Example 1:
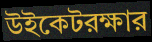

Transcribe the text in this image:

উইকেটরক্ষার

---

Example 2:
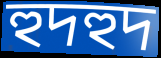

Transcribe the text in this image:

হুদহুদ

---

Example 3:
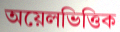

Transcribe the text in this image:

অয়েলভিত্তিক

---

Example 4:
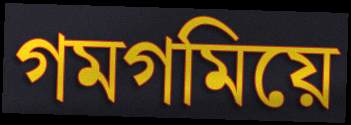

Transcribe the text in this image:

গমগমিয়ে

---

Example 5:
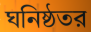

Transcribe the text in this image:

ঘনিষ্ঠতর